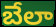
బేలా